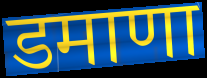
डमाणा